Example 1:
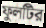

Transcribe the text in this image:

ফুলটির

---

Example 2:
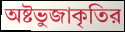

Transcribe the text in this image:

অষ্টভুজাকৃতির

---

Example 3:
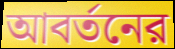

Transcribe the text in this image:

আবর্তনের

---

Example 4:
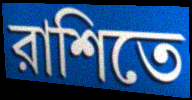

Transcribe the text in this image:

রাশিতে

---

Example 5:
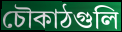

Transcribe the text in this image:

চৌকাঠগুলি